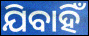
ଯିବାହିଁ